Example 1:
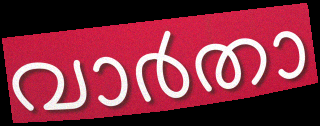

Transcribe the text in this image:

വാർതാ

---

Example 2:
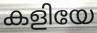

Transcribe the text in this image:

കളിയേ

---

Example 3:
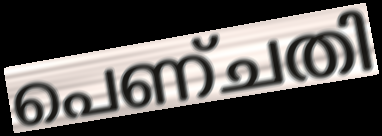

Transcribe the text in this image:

പെണ്ചതി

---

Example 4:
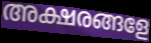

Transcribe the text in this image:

അക്ഷരങ്ങളേ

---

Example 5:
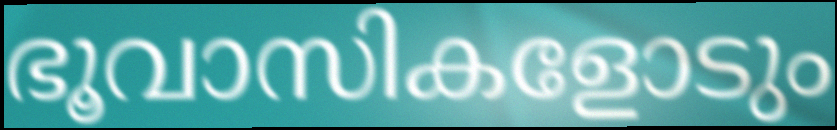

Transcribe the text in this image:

ഭൂവാസികളോടും